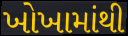
ખોખામાંથી